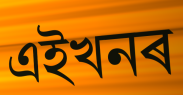
এইখনৰ